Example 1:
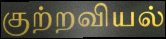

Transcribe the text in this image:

குற்றவியல்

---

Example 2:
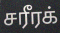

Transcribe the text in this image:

சரீரக்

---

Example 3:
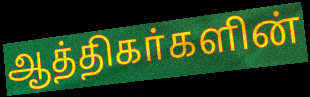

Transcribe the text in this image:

ஆத்திகர்களின்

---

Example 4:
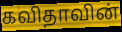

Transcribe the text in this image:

கவிதாவின்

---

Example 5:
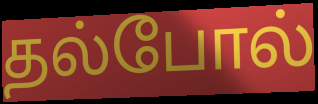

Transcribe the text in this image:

தல்போல்